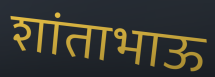
शांताभाऊ